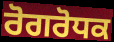
ਰੋਗਰੋਧਕ